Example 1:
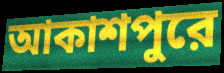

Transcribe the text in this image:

আকাশপুরে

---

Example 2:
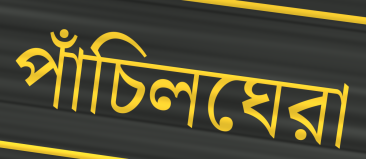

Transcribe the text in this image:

পাঁচিলঘেরা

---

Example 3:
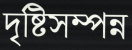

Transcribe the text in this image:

দৃষ্টিসম্পন্ন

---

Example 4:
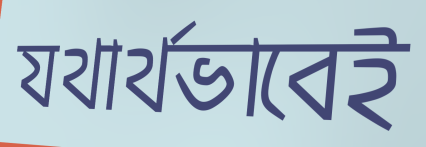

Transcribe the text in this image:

যথার্থভাবেই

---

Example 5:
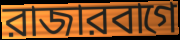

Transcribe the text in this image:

রাজারবাগে